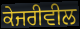
ਕੇਜਰੀਵੀਲ